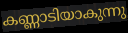
കണ്ണാടിയാകുന്നു